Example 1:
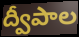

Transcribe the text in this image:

ద్వీపాల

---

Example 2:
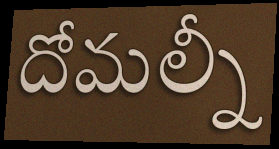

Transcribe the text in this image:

దోమల్నీ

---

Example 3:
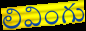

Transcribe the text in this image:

లివింగు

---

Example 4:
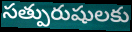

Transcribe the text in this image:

సత్పురుషులకు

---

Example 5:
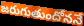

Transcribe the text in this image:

జరుగుతుందోననే